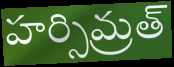
హర్సిమ్రత్